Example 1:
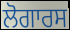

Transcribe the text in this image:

ਲੋਗਾਰਸ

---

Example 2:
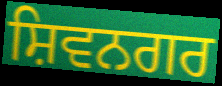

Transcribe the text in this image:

ਸ਼ਿਵਨਗਰ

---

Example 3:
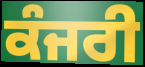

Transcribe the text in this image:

ਕੰਜਰੀ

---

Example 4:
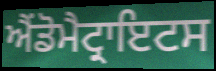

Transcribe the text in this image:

ਐਂਡੋਮੈਟ੍ਰਾਇਟਸ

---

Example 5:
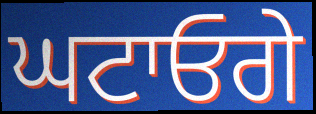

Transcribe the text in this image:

ਘਟਾਓਗੇ